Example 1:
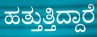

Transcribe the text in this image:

ಹತ್ತುತ್ತಿದ್ದಾರೆ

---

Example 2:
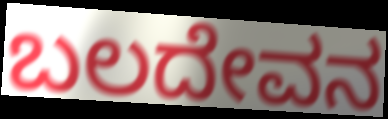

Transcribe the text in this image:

ಬಲದೇವನ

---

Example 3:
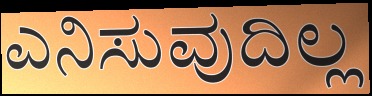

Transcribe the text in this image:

ಎನಿಸುವುದಿಲ್ಲ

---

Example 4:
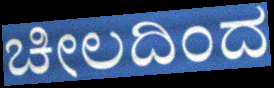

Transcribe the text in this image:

ಚೀಲದಿಂದ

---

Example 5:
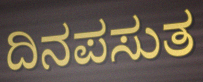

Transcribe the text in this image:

ದಿನಪಸುತ